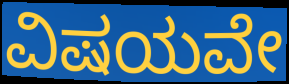
ವಿಷಯವೇ